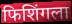
फिशिंगला